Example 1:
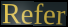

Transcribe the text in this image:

Refer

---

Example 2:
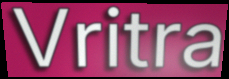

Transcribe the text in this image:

Vritra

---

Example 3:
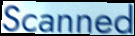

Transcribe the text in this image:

Scanned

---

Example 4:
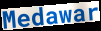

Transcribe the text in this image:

Medawar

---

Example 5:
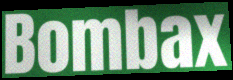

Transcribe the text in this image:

Bombax